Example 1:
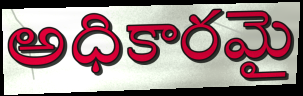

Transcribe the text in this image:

అధికారమై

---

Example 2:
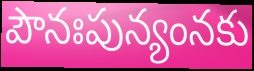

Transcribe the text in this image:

పౌనఃపున్యంనకు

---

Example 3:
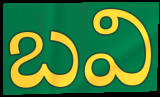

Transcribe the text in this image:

బవి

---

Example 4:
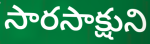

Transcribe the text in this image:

సారసాక్షుని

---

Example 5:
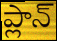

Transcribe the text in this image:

ప్లాన్